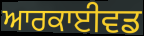
ਆਰਕਾਈਵਡ